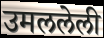
उमललेली